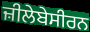
ਜ਼ੀਲੇਬੇਸੀਰਨ